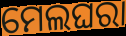
ମେଲଘରା